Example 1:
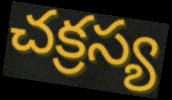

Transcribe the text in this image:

చక్రస్య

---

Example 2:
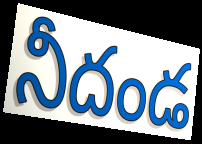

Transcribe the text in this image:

నీదండ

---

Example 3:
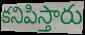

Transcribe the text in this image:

కనిపిస్తారు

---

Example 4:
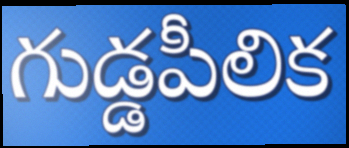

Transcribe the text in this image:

గుడ్డపీలిక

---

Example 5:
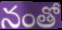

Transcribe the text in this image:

నంతో